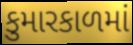
કુમારકાળમાં